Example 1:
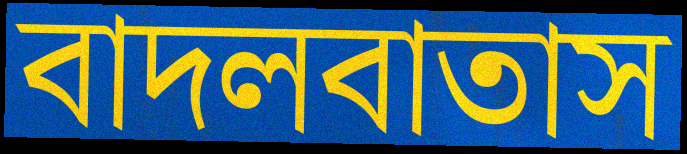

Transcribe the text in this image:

বাদলবাতাস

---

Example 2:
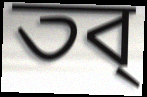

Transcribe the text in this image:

তব্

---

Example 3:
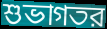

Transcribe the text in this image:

শুভাগতর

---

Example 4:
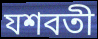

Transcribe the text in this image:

যশবতী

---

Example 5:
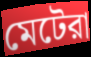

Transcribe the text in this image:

মেটেরা